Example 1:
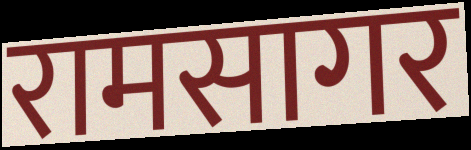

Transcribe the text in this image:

रामसागर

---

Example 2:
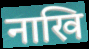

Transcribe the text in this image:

नाखि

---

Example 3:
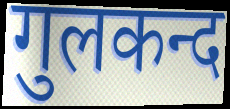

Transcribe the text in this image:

गुलकन्द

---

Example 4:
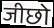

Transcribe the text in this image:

जीछो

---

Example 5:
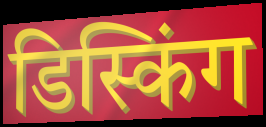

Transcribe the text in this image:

डिस्किंग